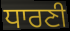
ਧਾਰਣੀ